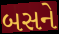
બસને